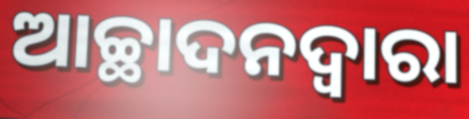
ଆଚ୍ଛାଦନଦ୍ୱାରା